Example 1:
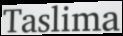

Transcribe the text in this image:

Taslima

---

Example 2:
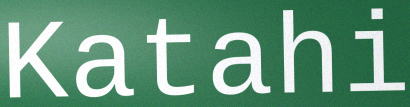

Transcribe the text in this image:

Katahi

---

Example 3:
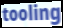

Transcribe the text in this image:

tooling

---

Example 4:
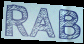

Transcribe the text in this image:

RAB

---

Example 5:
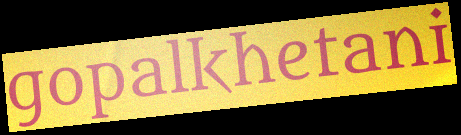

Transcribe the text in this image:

gopalkhetani